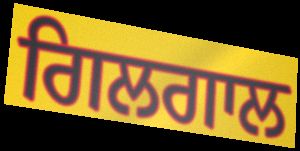
ਗਿਲਗਾਲ